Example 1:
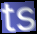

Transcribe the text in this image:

ts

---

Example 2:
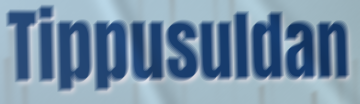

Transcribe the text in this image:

Tippusuldan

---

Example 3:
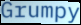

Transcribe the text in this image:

Grumpy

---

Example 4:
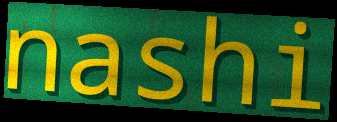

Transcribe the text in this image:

nashi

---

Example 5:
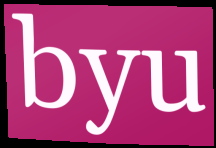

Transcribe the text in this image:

byu